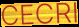
CECRI